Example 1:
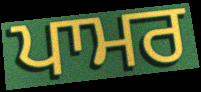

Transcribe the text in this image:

ਪਾਮਰ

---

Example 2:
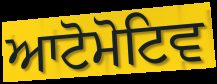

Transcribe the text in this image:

ਆਟੋਮੋਟਿਵ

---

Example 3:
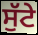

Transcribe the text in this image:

ਸੁੱਟੇ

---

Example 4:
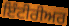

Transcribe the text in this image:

ਇੰਟੀਰੀਅਰ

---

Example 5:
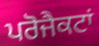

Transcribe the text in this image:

ਪਰੋਜੈਕਟਾਂ